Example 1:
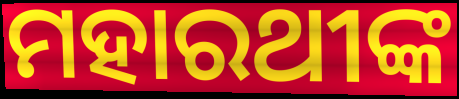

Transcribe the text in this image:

ମହାରଥୀଙ୍କ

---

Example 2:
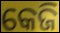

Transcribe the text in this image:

କେଜି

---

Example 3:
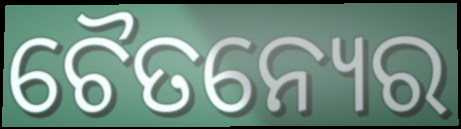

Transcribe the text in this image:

ଚୈତନ୍ୟେର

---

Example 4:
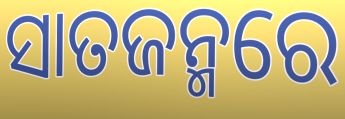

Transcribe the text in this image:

ସାତଜନ୍ମରେ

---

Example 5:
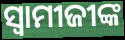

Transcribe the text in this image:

ସ୍ଵାମୀଜୀଙ୍କ